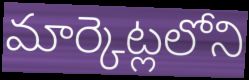
మార్కెట్లలోని